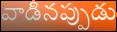
వాడినప్పుడు